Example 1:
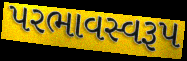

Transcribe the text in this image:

પરભાવસ્વરૂપ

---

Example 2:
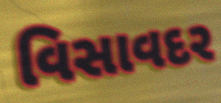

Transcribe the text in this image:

વિસાવદર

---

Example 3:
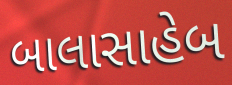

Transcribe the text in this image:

બાલાસાહેબ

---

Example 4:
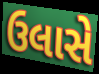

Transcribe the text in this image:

ઉલાસે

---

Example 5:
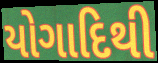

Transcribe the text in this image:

યોગાદિથી